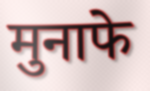
मुनाफे